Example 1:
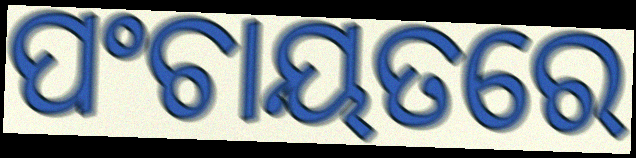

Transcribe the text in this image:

ପଂଚାୟତରେ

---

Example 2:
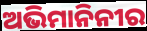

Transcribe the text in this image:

ଅଭିମାନିନୀର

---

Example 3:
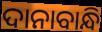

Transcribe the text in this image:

ଦାନାବାନ୍ଧି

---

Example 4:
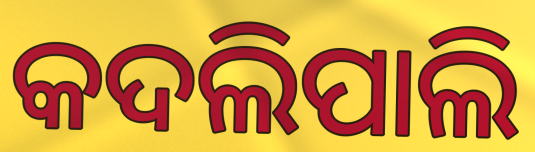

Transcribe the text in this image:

କଦଲିପାଲି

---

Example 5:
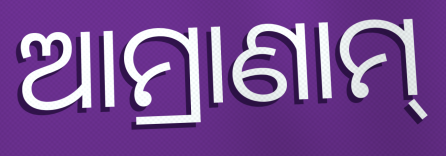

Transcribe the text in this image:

ଆମ୍ରାଣାମ୍